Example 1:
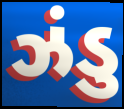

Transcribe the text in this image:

ઝંડુ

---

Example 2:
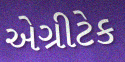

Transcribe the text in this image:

એગ્રીટેક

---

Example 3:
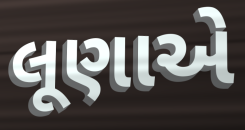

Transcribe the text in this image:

લૂણાએ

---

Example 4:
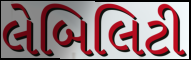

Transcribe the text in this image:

લેબિલિટી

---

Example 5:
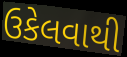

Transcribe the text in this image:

ઉકેલવાથી